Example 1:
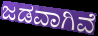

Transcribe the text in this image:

ಜಡವಾಗಿವೆ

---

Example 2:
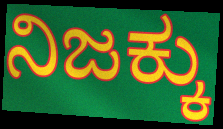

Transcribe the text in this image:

ನಿಜಕ್ಕು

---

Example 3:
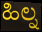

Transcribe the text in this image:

ಹಿಲ್ನ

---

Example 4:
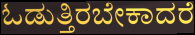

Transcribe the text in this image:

ಓಡುತ್ತಿರಬೇಕಾದರೆ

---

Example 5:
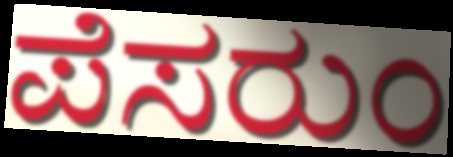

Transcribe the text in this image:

ಪೆಸರುಂ